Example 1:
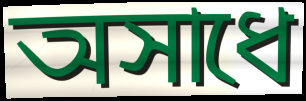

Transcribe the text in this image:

অসাধে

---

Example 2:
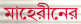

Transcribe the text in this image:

মাহেরীনের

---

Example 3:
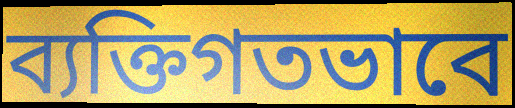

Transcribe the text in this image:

ব্যক্তিগতভাবে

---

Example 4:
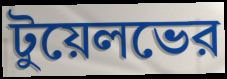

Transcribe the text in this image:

টুয়েলভের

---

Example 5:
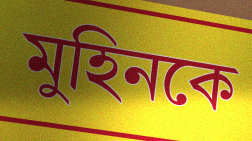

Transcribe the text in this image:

মুহিনকে